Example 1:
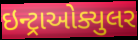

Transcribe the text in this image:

ઇન્ટ્રાઓક્યુલર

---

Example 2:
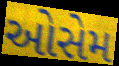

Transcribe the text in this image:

ઓસેમ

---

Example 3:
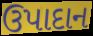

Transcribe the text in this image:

ઉપાદાન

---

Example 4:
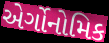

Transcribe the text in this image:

એર્ગોનોમિક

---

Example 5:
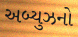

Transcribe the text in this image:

અબ્યુઝનો